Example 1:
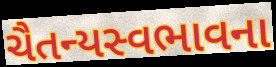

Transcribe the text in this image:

ચૈતન્યસ્વભાવના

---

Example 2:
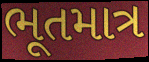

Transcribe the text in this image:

ભૂતમાત્ર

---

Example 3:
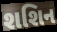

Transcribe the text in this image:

શશિન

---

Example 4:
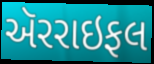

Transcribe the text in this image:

ઍરરાઇફલ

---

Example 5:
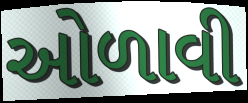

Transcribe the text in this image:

ઓળાવી